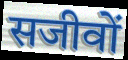
सजीवों